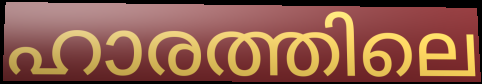
ഹാരത്തിലെ